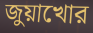
জুয়াখোর